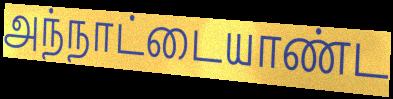
அந்நாட்டையாண்ட